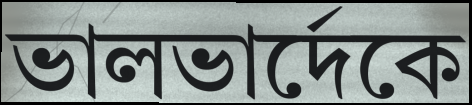
ভালভার্দেকে